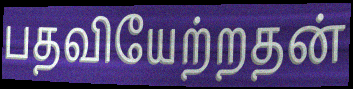
பதவியேற்றதன்